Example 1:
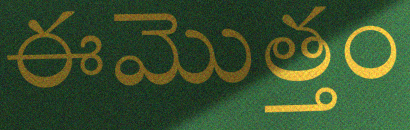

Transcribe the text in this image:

ఈమొత్తం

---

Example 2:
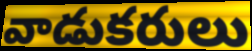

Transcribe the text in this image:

వాడుకరులు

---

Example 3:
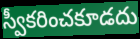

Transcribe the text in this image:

స్వీకరించకూడదు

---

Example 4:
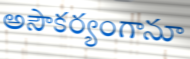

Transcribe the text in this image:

అసౌకర్యంగానూ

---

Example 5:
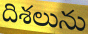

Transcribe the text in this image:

దిశలును